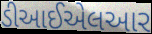
ડીઆઈએલઆર